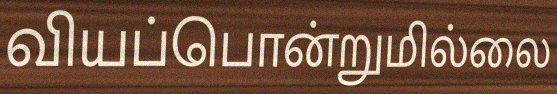
வியப்பொன்றுமில்லை